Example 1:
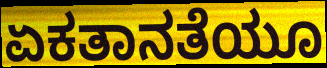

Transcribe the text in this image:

ಏಕತಾನತೆಯೂ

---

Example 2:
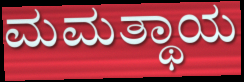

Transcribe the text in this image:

ಮಮತ್ಥಾಯ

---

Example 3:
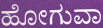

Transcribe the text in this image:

ಹೋಗುವಾ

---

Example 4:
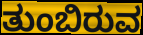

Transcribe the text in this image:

ತುಂಬಿರುವ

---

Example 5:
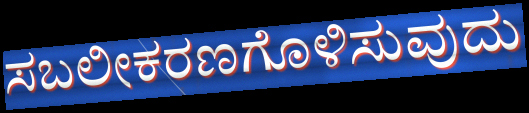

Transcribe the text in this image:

ಸಬಲೀಕರಣಗೊಳಿಸುವುದು